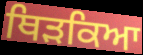
ਥਿੜਕਿਆ